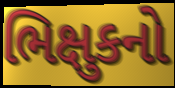
ભિક્ષુકનો